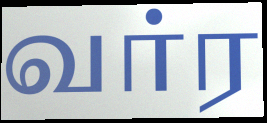
வர்ர